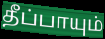
தீப்பாயும்